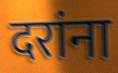
दरांना